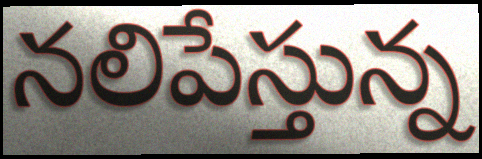
నలిపేస్తున్న